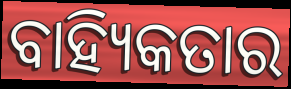
ବାହ୍ୟିକତାର